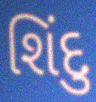
શિંદુ